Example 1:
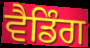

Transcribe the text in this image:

ਵੈਡਿੰਗ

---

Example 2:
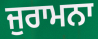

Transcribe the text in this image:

ਜੁਰਾਮਨਾ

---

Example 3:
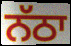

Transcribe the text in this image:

ਨੱਠਾ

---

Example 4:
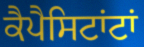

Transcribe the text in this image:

ਕੈਪੈਸਿਟਾਂਟਾਂ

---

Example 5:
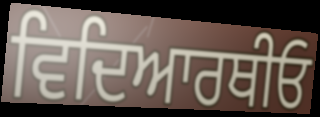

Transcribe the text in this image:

ਵਿਦਿਆਰਥੀਓ